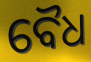
ବୈଧ